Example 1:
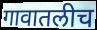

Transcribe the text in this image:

गावातलीच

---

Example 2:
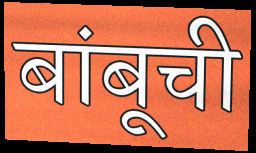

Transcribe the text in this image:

बांबूची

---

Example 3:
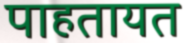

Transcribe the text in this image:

पाहतायत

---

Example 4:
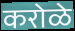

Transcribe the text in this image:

करोळे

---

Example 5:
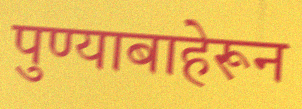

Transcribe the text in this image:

पुण्याबाहेरून